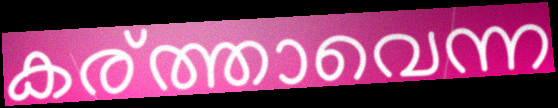
കര്ത്താവെന്ന